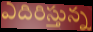
ఎదిరిస్తున్న